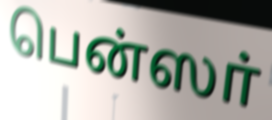
பென்ஸர்